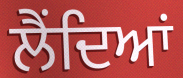
ਲੈਂਦਿਆਂ